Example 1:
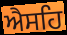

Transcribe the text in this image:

ਐਸਹਿ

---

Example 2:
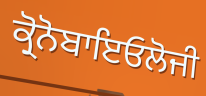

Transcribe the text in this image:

ਕ੍ਰੋਨੋਬਾਇਓਲੋਜੀ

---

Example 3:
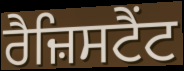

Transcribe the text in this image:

ਰੈਜ਼ਿਸਟੈਂਟ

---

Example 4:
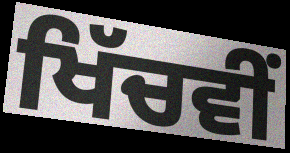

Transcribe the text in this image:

ਖਿੱਚਵੀਂ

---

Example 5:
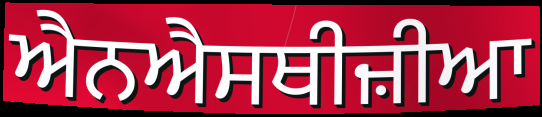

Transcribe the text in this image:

ਐਨਐਸਥੀਜ਼ੀਆ